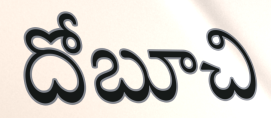
దోబూచి